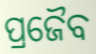
ପ୍ରଜୈବ